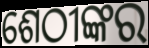
ଶେଠୀଙ୍କର